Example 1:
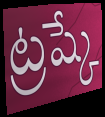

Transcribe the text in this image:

ట్రష్కే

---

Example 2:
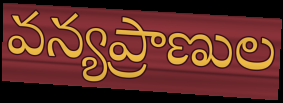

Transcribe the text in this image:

వన్యప్రాణుల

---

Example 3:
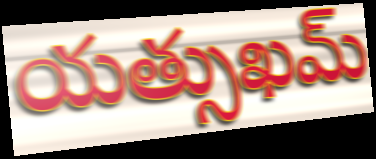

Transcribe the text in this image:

యత్సుఖమ్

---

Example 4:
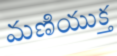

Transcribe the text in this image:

మణియుక్త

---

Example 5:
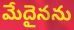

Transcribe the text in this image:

మేదైనను